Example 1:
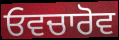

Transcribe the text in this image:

ਓਵਚਾਰੋਵ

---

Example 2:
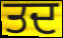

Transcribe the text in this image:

ਤਦ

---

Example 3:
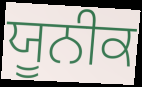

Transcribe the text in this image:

ਯੂਨੀਕ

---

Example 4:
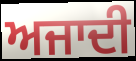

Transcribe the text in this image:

ਅਜਾਦੀ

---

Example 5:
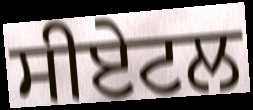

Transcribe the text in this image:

ਸੀਏਟਲ